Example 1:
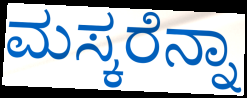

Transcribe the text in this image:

ಮಸ್ಕರೆನ್ನಾ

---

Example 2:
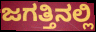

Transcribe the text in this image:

ಜಗತ್ತಿನಲ್ಲಿ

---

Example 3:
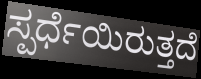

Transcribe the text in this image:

ಸ್ಪರ್ಧೆಯಿರುತ್ತದೆ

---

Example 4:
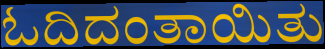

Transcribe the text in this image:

ಓದಿದಂತಾಯಿತು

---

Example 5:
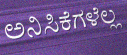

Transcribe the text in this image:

ಅನಿಸಿಕೆಗಳೆಲ್ಲ